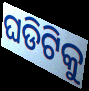
ଘଡିଟିକୁ